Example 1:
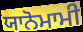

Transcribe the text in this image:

ਯਾਨੋਮਾਮੀ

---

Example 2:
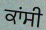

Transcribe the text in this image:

ਕਾਂਸੀ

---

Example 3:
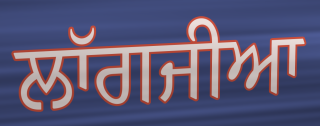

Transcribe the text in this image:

ਲਾੱਗਜੀਆ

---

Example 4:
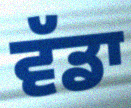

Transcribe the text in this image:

ਵੱਡਾ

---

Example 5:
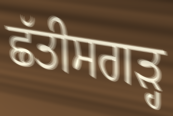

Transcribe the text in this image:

ਛੱਤੀਸਗੜ੍ਹ